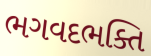
ભગવદભક્તિ